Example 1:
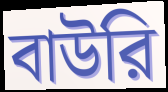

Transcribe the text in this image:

বাউরি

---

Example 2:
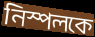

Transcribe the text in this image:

নিস্পলকে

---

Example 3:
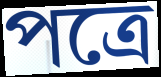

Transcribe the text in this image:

পত্রে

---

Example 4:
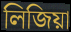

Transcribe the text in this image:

লিজিয়া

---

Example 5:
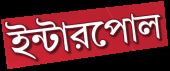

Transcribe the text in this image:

ইন্টারপোল